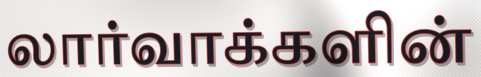
லார்வாக்களின்